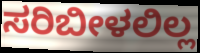
ಸರಿಬೀಳಲಿಲ್ಲ